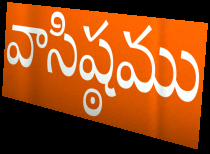
వాసిష్ఠము